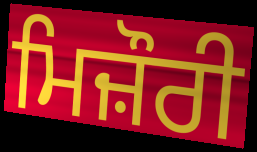
ਮਿਜ਼ੌਰੀ